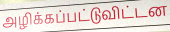
அழிக்கப்பட்டுவிட்டன